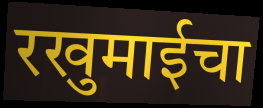
रखुमाईचा